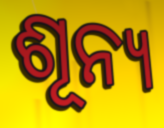
ଶୂନ୍ୟ